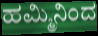
ಹಮ್ಮಿನಿಂದ